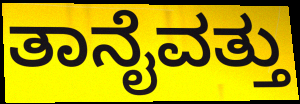
ತಾನೈವತ್ತು